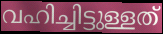
വഹിച്ചിട്ടുള്ളത്